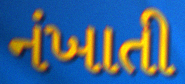
નંખાતી